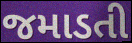
જમાડતી